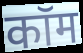
कॉम